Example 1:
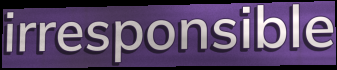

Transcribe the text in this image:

irresponsible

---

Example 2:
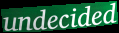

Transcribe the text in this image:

undecided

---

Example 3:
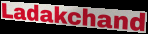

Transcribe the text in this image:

Ladakchand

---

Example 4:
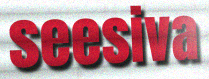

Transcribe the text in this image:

seesiva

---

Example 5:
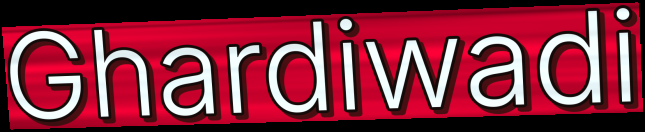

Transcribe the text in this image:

Ghardiwadi